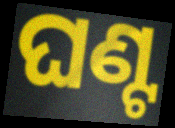
ଘଣ୍ଟ